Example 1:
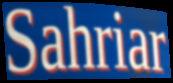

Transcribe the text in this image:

Sahriar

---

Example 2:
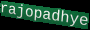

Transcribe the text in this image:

rajopadhye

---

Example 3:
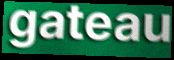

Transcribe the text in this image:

gateau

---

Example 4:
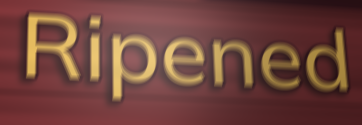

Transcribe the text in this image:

Ripened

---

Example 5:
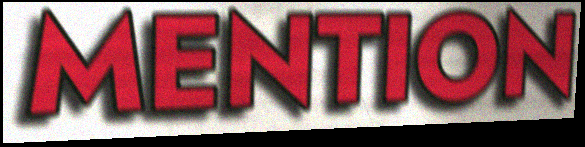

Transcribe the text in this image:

MENTION